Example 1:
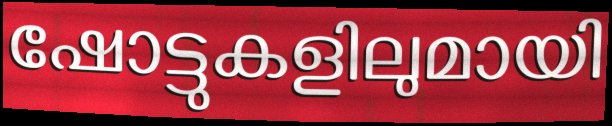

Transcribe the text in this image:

ഷോട്ടുകളിലുമായി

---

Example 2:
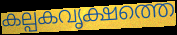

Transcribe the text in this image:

കല്പകവൃക്ഷത്തെ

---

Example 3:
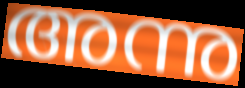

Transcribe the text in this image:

അന്നു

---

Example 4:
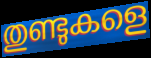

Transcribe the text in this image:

തുണ്ടുകളെ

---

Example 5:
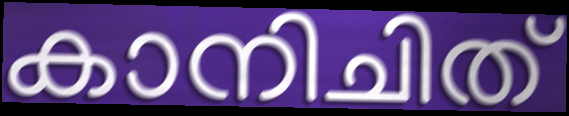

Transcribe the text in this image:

കാനിചിത്